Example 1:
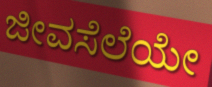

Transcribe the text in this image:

ಜೀವಸೆಲೆಯೇ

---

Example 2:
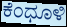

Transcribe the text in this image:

ಕೆಂಧೂಳಿ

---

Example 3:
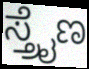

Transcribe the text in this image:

ಸ್ತ್ರೈಣ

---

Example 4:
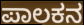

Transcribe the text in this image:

ಪಾಲಕನ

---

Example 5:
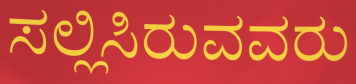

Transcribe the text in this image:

ಸಲ್ಲಿಸಿರುವವರು